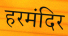
हरमंदिर